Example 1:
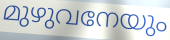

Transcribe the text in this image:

മുഴുവനേയും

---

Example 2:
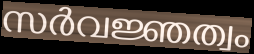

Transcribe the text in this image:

സർവജ്ഞത്വം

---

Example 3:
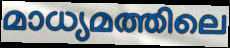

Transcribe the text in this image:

മാധ്യമത്തിലെ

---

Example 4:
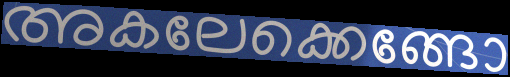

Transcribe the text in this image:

അകലേക്കെങ്ങോ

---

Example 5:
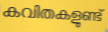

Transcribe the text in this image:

കവിതകളുണ്ട്